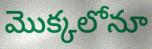
మొక్కలోనూ